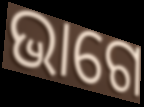
ଭାଗେ